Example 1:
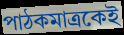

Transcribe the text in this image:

পাঠকমাত্রকেই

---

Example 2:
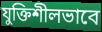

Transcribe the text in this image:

যুক্তিশীলভাবে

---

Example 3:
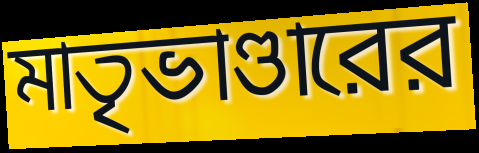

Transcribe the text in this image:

মাতৃভাণ্ডারের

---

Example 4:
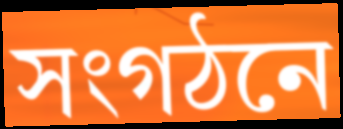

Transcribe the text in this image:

সংগঠনে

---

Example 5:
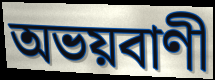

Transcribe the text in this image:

অভয়বাণী